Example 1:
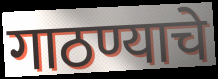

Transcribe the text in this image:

गाठण्याचे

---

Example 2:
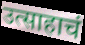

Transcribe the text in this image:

उत्साहाचं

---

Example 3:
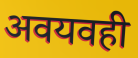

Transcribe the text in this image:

अवयवही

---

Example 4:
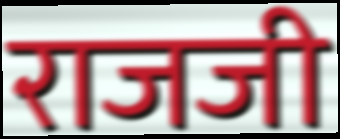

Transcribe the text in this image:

राजजी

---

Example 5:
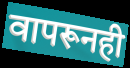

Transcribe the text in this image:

वापरूनही